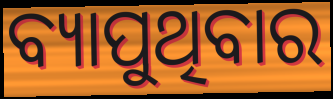
ବ୍ୟାପୁଥିବାର